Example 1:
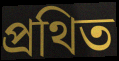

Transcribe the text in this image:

প্রথিত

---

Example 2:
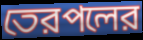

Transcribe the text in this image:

তেরপলের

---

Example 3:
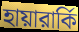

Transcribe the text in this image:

হায়ারার্কি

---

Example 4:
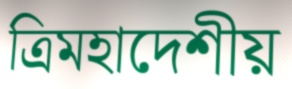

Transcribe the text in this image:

ত্রিমহাদেশীয়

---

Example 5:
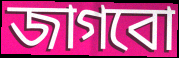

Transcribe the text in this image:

জাগবো